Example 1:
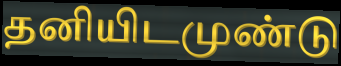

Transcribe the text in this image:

தனியிடமுண்டு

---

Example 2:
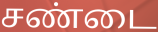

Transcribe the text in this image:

சண்டை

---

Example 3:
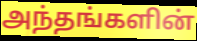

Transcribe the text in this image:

அந்தங்களின்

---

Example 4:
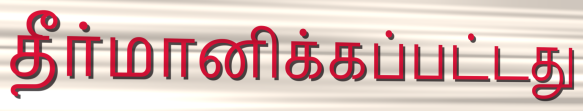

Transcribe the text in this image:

தீர்மானிக்கப்பட்டது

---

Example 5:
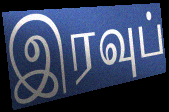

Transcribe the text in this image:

இரவுப்